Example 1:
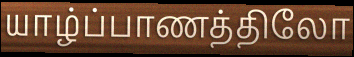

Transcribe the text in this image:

யாழ்ப்பாணத்திலோ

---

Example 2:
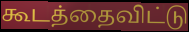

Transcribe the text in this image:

கூடத்தைவிட்டு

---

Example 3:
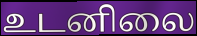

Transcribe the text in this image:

உடனிலை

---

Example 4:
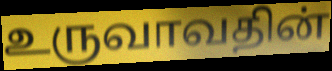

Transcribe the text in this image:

உருவாவதின்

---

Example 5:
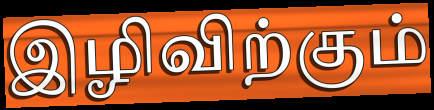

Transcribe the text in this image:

இழிவிற்கும்